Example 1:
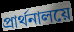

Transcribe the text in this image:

প্রার্থনালয়ে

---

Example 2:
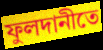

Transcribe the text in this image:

ফুলদানীতে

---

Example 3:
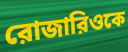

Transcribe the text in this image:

রোজারিওকে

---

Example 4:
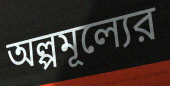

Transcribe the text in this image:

অল্পমূল্যের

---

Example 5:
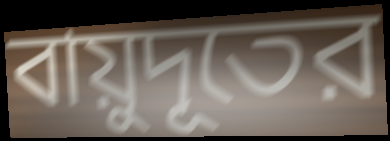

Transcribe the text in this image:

বায়ুদূতের